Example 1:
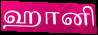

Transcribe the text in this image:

ஹானி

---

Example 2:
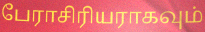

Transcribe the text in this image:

பேராசிரியராகவும்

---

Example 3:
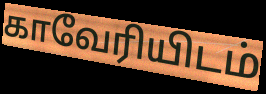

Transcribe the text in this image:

காவேரியிடம்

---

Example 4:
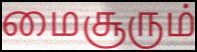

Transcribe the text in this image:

மைசூரும்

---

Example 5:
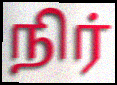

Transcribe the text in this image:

நிர்